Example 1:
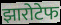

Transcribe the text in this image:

झारोटेफ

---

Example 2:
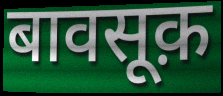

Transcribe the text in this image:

बावसूक़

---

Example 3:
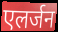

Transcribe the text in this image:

एलर्जन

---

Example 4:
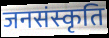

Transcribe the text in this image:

जनसंस्कृति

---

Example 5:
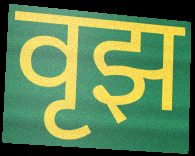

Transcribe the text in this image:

वृझ